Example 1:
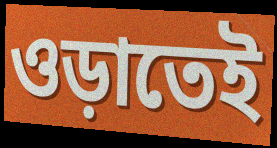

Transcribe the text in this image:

ওড়াতেই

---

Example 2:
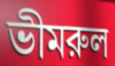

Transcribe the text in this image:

ভীমরুল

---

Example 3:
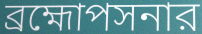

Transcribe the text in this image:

ব্রহ্মোপসনার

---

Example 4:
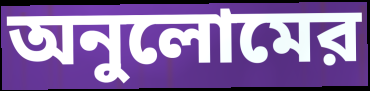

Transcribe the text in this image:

অনুলোমের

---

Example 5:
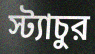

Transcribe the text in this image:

স্ট্যাচুর